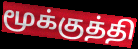
மூக்குத்தி